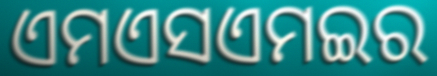
ଏମଏସଏମଇର